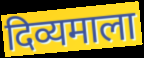
दिव्यमाला